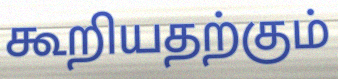
கூறியதற்கும்